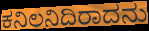
ಕನಿಲನಿದಿರಾದನು